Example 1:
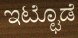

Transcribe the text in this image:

ಇಟ್ಟೊಡೆ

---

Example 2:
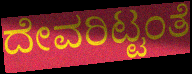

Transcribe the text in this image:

ದೇವರಿಟ್ಟಂತೆ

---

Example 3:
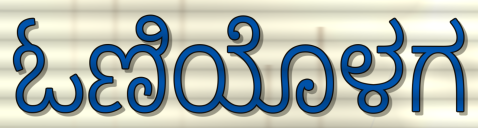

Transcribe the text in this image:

ಓಣಿಯೊಳಗ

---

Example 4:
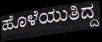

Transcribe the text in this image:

ಹೊಳೆಯುತಿದ್ದ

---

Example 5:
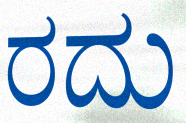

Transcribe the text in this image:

ರದು